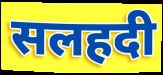
सलहदी